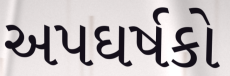
અપઘર્ષકો